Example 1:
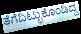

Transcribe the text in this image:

ತೆಗೆದಿಟ್ಟುಕೊಂಡಿದ್ದ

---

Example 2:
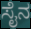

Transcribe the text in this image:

ಸೈನ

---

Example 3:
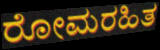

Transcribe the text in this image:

ರೋಮರಹಿತ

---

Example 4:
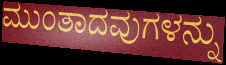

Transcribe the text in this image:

ಮುಂತಾದವುಗಳನ್ನು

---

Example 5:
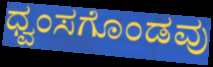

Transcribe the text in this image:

ಧ್ವಂಸಗೊಂಡವು